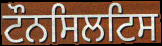
ਟੌਨਸਿਲਟਿਸ